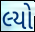
લ્યો